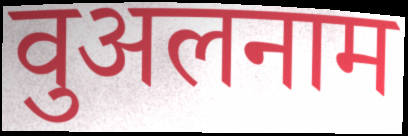
वुअलनाम